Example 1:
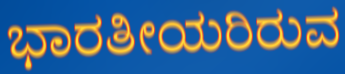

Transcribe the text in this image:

ಭಾರತೀಯರಿರುವ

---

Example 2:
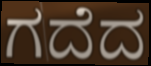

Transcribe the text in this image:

ಗದೆದ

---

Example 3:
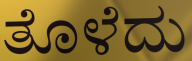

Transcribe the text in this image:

ತೊಳೆದು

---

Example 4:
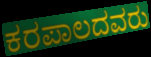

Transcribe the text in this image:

ಕರಪಾಲದವರು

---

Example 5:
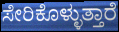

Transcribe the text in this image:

ಸೇರಿಕೊಳ್ಳುತ್ತಾರೆ